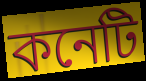
কনেটি